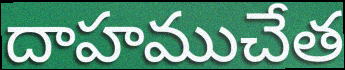
దాహముచేత